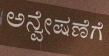
ಅನ್ವೇಷಣೆಗೆ